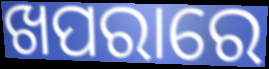
ଖପରାରେ